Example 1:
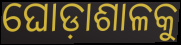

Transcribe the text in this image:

ଘୋଡ଼ାଶାଳକୁ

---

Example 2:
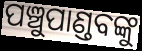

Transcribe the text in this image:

ପଞ୍ଚୁପାଣ୍ଡବଙ୍କୁ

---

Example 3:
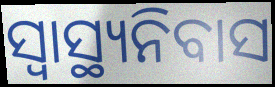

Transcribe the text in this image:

ସ୍ୱାସ୍ଥ୍ୟନିବାସ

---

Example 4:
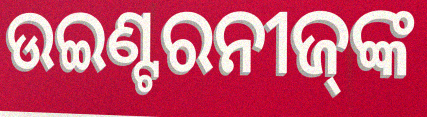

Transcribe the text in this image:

ଉଇଣ୍ଟରନୀଜ୍‌ଙ୍କ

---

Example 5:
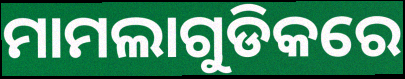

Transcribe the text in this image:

ମାମଲାଗୁଡିକରେ